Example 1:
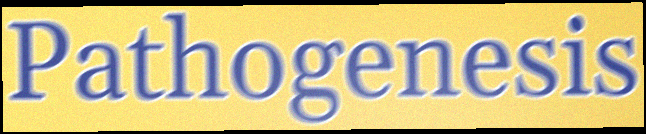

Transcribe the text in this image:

Pathogenesis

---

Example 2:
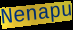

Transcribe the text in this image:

Nenapu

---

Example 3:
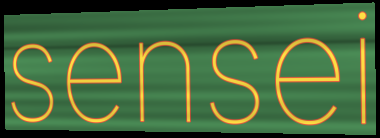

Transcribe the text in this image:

sensei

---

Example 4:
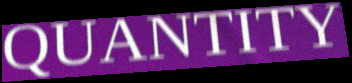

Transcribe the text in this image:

QUANTITY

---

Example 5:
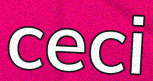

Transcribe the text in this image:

ceci